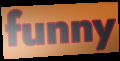
funny